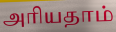
அரியதாம்